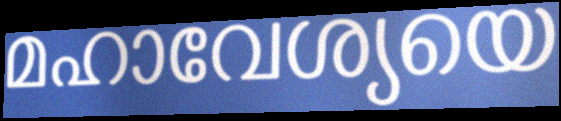
മഹാവേശ്യയെ